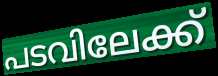
പടവിലേക്ക്